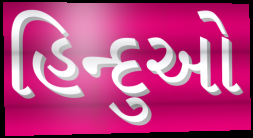
હિન્દુઓ